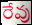
రేవు